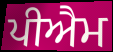
ਪੀਐਮ